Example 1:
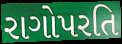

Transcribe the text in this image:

રાગોપરતિ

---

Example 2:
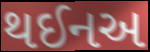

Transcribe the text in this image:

થઈનઅ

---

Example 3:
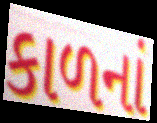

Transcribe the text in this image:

કાળનાં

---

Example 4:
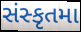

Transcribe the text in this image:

સંસ્કૃતમા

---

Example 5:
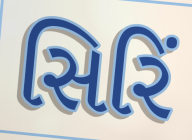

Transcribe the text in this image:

સિરિં